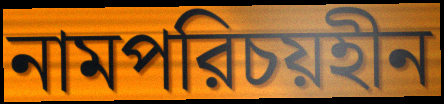
নামপরিচয়হীন